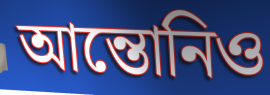
আন্তোনিও